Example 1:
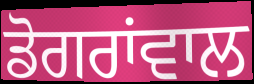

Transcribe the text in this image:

ਡੋਗਰਾਂਵਾਲ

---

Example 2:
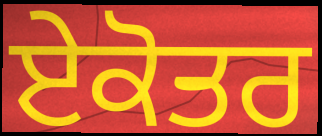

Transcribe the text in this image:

ਏਕੋਤਰ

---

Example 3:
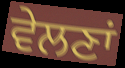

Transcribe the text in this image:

ਵੇਲਣਾਂ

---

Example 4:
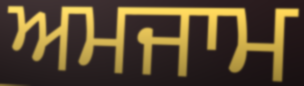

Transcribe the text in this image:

ਅਮਜਾਮ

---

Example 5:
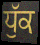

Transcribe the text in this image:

ਧੁੱਕ